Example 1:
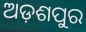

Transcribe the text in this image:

ଅଡ଼ଶପୁର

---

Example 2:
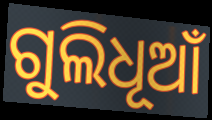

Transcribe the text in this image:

ଗୁଲିଧୂଆଁ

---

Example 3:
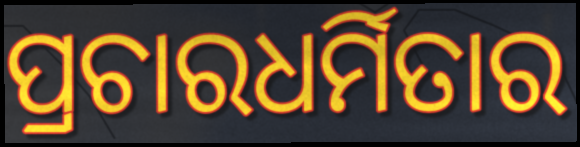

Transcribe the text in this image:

ପ୍ରଚାରଧର୍ମିତାର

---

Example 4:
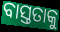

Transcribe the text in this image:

ବାସ୍ତତାକୁ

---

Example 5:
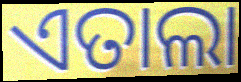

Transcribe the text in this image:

ଏତାଲା